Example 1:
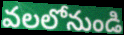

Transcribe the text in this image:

వలలోనుండి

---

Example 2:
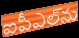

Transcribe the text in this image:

ఐపీఎల్‌ను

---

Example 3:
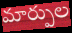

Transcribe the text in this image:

మార్పుల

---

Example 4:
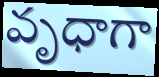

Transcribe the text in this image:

వృధాగా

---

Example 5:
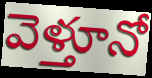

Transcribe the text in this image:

వెళ్తూనో